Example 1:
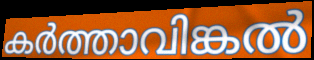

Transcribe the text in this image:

കർത്താവിങ്കൽ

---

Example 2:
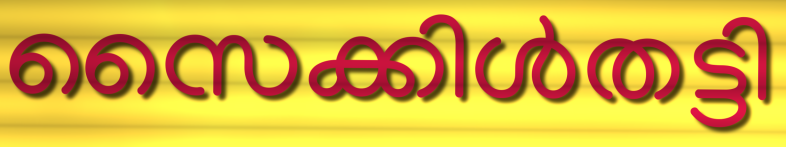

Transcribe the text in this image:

സൈക്കിൾതട്ടി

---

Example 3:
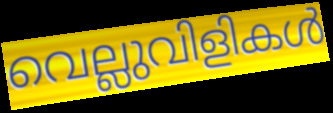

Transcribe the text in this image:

വെല്ലുവിളികൾ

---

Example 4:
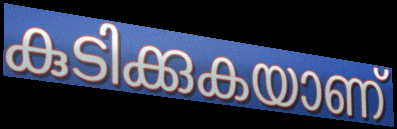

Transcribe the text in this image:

കുടിക്കുകയാണ്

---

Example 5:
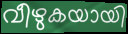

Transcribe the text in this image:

വീഴുകയായി